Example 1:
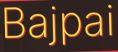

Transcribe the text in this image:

Bajpai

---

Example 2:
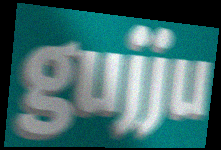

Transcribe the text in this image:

gujju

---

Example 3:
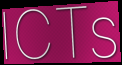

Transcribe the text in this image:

ICTs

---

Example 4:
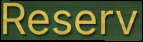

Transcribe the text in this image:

Reserv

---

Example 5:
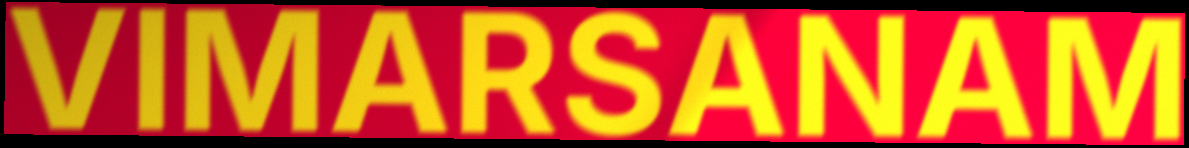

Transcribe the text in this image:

VIMARSANAM